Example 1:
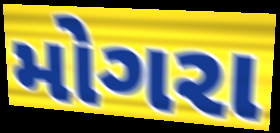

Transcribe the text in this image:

મોગરા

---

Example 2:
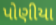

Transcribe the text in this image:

પોણીયા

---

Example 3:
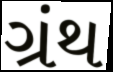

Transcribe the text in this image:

ગ્રંથ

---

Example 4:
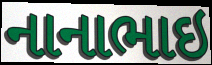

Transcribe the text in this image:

નાનાભાઇ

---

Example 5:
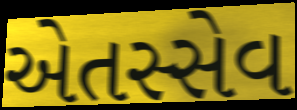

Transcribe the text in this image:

એતસ્સેવ